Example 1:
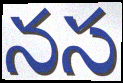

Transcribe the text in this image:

నస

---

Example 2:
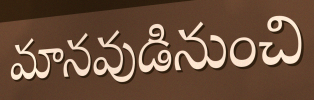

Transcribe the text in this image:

మానవుడినుంచి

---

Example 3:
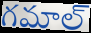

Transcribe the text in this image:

గమాల్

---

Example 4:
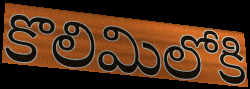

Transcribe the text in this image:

కొలిమిలోకి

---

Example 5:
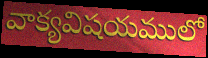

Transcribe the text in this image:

వాక్యవిషయములో